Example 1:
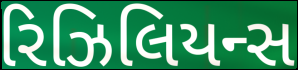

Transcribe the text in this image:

રિઝિલિયન્સ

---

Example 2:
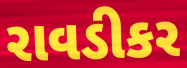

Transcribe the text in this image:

રાવડીકર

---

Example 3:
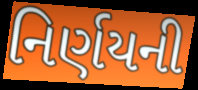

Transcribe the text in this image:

નિર્ણયની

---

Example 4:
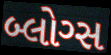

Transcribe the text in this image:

બ્લોગ્સ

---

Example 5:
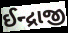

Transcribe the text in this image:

ઈન્દ્રાજી